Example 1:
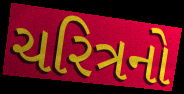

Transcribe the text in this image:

ચરિત્રનો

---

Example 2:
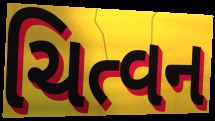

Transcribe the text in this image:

ચિત્વન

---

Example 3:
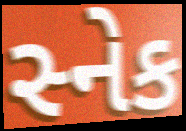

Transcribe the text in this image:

સ્નેક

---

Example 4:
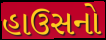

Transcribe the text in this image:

હાઉસનો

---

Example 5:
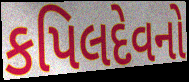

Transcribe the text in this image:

કપિલદેવનો